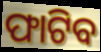
ଫାଟିବ